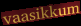
vaasikkum